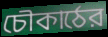
চৌকাঠের